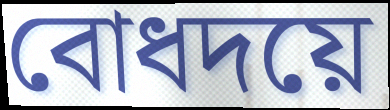
বোধদয়ে